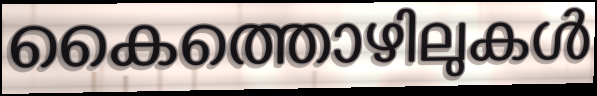
കൈത്തൊഴിലുകൾ